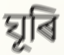
ঘূৰি